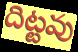
దిట్టవు